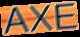
AXE